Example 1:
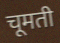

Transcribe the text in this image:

चूमती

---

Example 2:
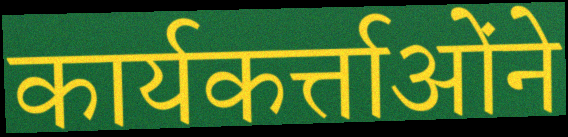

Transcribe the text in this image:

कार्यकर्त्ताओंने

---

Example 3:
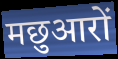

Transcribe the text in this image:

मछुआरों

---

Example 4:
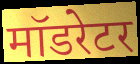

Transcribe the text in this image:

मॉडरेटर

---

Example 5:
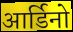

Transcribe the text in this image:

आर्डिनो